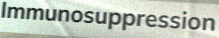
Immunosuppression